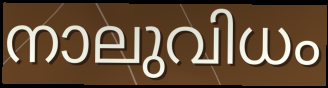
നാലുവിധം